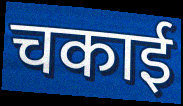
चकाई